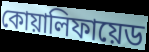
কোয়ালিফায়েড